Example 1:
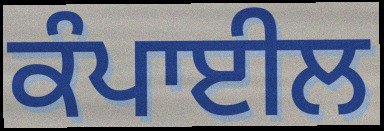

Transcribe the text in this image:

ਕੰਪਾਈਲ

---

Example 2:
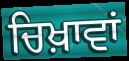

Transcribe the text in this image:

ਚਿਖ਼ਾਵਾਂ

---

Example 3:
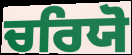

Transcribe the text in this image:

ਚਰਿਯੋ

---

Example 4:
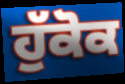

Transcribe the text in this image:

ਹੁੱਕੋਕ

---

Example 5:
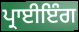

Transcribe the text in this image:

ਪ੍ਰਾਈਇੰਗ